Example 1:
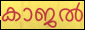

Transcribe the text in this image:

കാജൽ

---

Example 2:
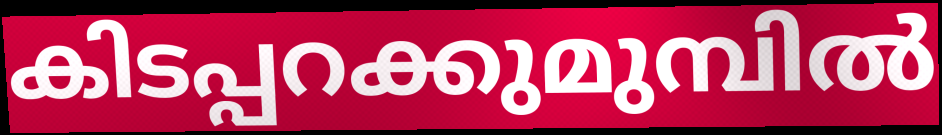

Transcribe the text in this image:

കിടപ്പറക്കുമുമ്പിൽ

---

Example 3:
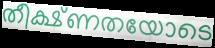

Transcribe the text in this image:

തീക്ഷ്ണതയോടെ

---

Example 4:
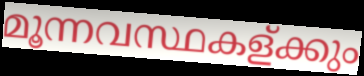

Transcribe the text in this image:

മൂന്നവസ്ഥകള്ക്കും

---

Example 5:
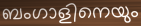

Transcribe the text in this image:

ബംഗാളിനെയും